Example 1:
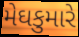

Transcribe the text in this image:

મેઘકુમારે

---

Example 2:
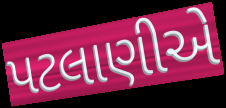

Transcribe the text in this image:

પટલાણીએ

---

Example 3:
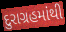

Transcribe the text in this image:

દુરાગ્રહમાંથી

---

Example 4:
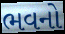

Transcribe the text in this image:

ભવનો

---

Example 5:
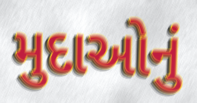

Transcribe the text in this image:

મુદાઓનું